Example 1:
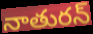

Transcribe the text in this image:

నాతురన్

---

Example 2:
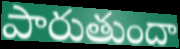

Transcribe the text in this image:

పారుతుందా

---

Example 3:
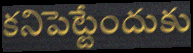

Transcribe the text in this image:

కనిపెట్టేందుకు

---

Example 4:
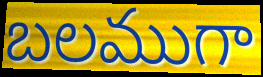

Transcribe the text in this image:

బలముగా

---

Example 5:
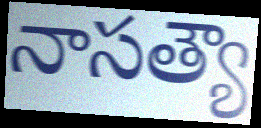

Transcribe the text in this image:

నాసత్యౌ